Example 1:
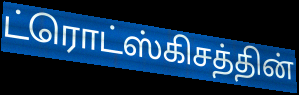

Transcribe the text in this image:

ட்ரொட்ஸ்கிசத்தின்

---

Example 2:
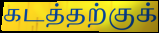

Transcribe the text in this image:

கடத்தற்குக்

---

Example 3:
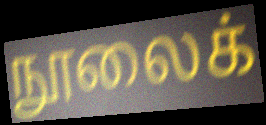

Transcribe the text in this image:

நூலைக்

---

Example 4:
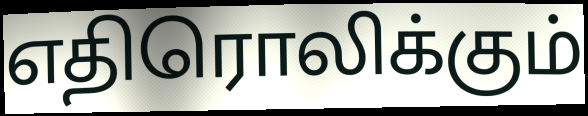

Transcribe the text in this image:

எதிரொலிக்கும்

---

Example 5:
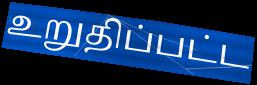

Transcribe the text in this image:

உறுதிப்பட்ட